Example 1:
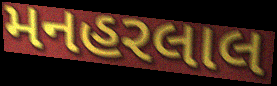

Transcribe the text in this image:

મનહરલાલ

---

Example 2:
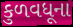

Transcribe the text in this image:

કુળવધૂના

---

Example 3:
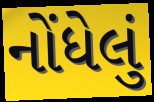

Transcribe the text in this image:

નોંધેલું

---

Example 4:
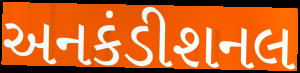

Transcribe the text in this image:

અનકંડીશનલ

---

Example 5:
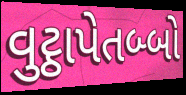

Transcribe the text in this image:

વુટ્ઠાપેતબ્બો